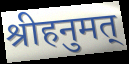
श्रीहनुमत्